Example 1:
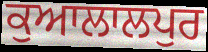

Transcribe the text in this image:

ਕੁਆਲਾਲਪੁਰ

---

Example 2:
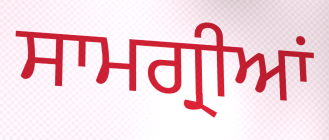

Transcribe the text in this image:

ਸਾਮਗ੍ਰੀਆਂ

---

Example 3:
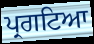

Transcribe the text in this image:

ਪ੍ਰਗਟਿਆ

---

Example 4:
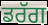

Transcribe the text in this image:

ਡਰੱਗ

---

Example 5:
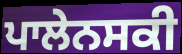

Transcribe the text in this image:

ਪਾਲੇਨਸਕੀ